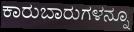
ಕಾರುಬಾರುಗಳನ್ನೂ